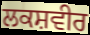
ਲਕਸ਼ਵੀਰ